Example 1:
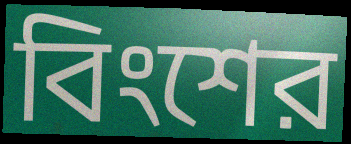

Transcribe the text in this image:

বিংশের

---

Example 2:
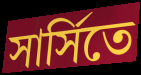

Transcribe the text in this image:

সার্সিতে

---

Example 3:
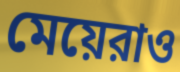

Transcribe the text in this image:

মেয়েরাও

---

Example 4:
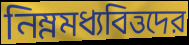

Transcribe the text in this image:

নিম্নমধ্যবিত্তদের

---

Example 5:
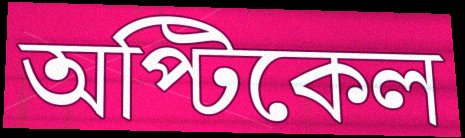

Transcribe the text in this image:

অপ্টিকেল